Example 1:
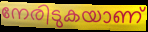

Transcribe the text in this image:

നേരിടുകയാണ്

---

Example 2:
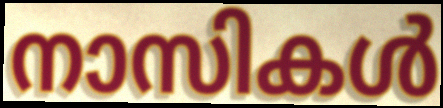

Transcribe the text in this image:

നാസികൾ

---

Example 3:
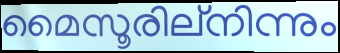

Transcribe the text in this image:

മൈസൂരില്നിന്നും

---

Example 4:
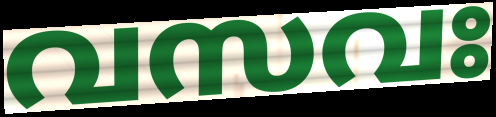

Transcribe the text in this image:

വസവഃ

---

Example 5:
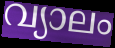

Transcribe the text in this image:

വ്യാലം